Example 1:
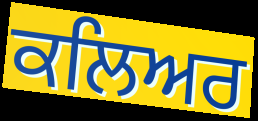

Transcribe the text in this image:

ਕਲਿਅਰ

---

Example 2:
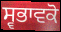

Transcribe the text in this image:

ਸ੍ਵਭਾਵਕੋ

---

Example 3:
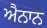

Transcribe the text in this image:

ਐਨਾਨ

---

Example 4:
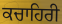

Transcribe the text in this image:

ਕਚਾਹਿਰੀ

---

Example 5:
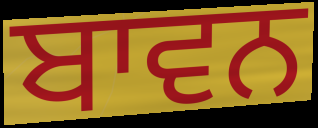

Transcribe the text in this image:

ਬਾਵਨ